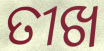
ତୀଖ